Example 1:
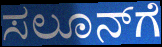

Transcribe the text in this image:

ಸಲೂನ್‍ಗೆ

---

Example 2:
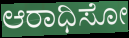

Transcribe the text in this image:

ಆರಾಧಿಸೋ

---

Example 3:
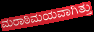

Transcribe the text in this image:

ಮರಾಠಿಮಯವಾಗಿತ್ತು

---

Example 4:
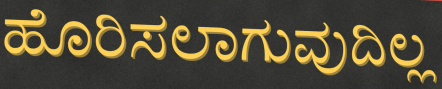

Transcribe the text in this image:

ಹೊರಿಸಲಾಗುವುದಿಲ್ಲ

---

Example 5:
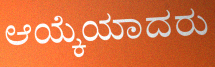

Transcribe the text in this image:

ಆಯ್ಕೆಯಾದರು